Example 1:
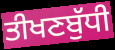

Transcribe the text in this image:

ਤੀਖਣਬੁੱਧੀ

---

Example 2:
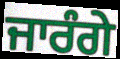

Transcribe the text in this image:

ਜਾਰੰਗੇ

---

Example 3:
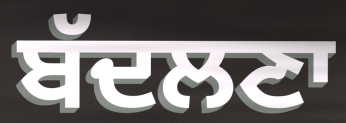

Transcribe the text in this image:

ਬੱਦਲਣਾ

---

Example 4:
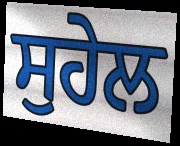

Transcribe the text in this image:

ਸੁਹੇਲ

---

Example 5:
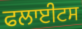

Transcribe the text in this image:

ਫਲਾਈਟਸ